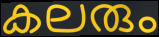
കലരും